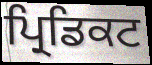
ਪ੍ਰਿਡਿਕਟ